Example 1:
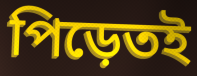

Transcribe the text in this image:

পিড়েতই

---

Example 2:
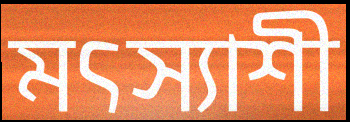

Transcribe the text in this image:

মৎস্যাশী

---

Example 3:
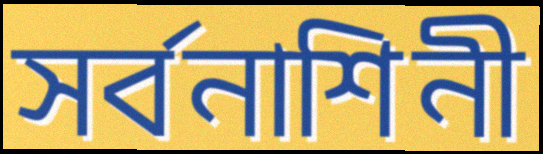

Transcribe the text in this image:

সর্বনাশিনী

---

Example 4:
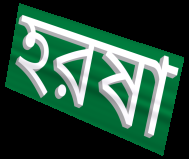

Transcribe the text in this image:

হরষা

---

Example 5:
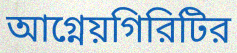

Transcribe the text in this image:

আগ্নেয়গিরিটির